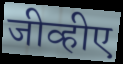
जीव्हीए